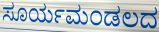
ಸೂರ್ಯಮಂಡಲದ